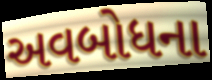
અવબોધના